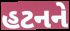
હટનને